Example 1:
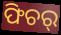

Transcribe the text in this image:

ଫିଚର୍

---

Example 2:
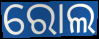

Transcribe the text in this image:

ରୋଲ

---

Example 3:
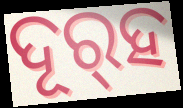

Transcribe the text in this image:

ଦୂର୍‌ହ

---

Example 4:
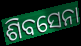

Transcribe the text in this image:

ଶିବସେନା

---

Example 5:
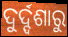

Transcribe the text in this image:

ଦୁର୍ଦ୍ଦଶାରୁ